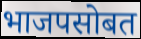
भाजपसोबत